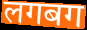
लगबग